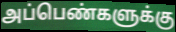
அப்பெண்களுக்கு